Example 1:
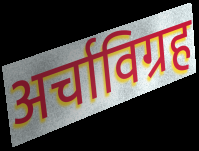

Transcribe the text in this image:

अर्चाविग्रह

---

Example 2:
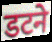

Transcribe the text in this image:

डटने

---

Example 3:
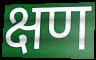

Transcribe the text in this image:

क्षण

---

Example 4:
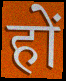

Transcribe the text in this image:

हों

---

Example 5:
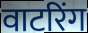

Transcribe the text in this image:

वाटरिंग